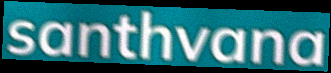
santhvana